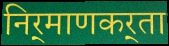
निर्माणकर्ता